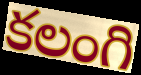
కలంగి